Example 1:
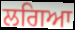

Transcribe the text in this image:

ਲਗਿਆ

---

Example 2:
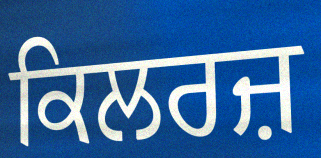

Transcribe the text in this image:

ਕਿਲਰਜ਼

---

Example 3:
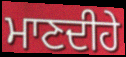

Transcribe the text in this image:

ਮਾਣਦੀਹੇ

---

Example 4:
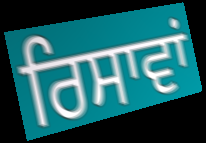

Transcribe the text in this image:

ਰਿਸਾਵਾਂ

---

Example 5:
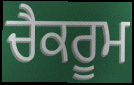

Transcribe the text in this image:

ਚੈਕਰੂਮ